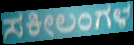
ಸಕೀಲಂಗಳ